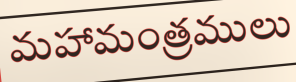
మహామంత్రములు